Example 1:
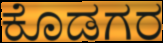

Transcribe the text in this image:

ಕೊಡಗರ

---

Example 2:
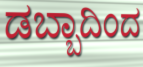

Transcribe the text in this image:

ಡಬ್ಬಾದಿಂದ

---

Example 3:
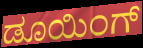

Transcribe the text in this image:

ಡೂಯಿಂಗ್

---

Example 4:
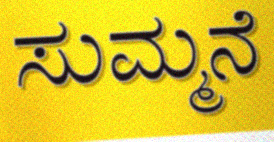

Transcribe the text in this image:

ಸುಮ್ಮನೆ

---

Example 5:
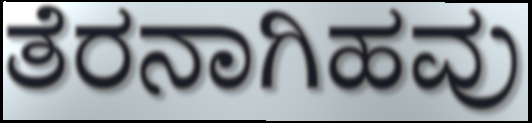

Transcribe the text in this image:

ತೆರನಾಗಿಹವು